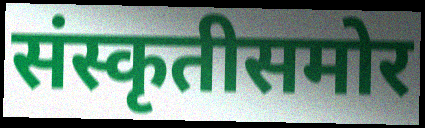
संस्कृतीसमोर